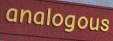
analogous